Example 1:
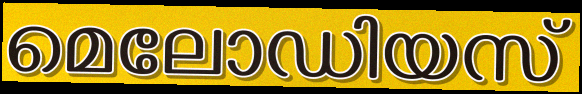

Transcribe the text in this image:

മെലോഡിയസ്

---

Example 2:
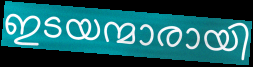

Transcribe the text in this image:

ഇടയന്മാരായി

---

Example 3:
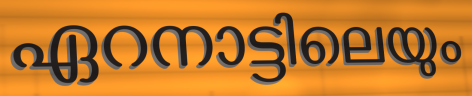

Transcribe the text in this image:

ഏറനാട്ടിലെയും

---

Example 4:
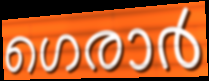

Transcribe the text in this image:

ഗെരാർ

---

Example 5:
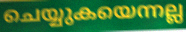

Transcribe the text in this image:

ചെയ്യുകയെന്നല്ല